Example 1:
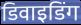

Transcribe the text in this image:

डिवाइडिंग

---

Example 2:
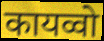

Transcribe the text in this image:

कायव्वो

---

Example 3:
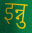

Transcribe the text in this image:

इन्नु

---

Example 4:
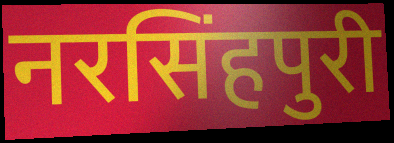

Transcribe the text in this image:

नरसिंहपुरी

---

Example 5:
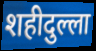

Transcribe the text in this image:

शहीदुल्ला